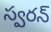
స్వరన్